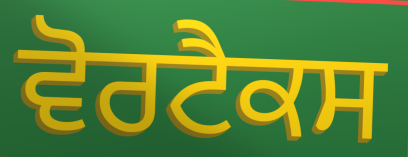
ਵੋਰਟੈਕਸ